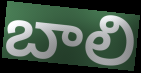
బాలి